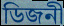
ডিজনী